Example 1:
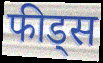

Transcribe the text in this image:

फीड्स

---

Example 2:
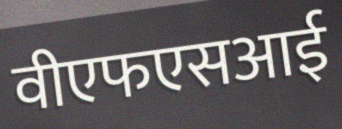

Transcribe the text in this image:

वीएफएसआई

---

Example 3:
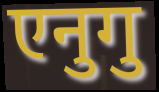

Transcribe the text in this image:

एनुगु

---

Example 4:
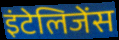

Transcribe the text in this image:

इंटेलिजेंस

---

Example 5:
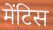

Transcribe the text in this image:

मेंटिस